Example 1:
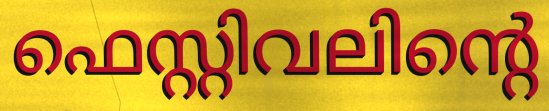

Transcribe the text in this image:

ഫെസ്റ്റിവലിന്റെ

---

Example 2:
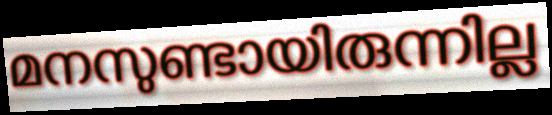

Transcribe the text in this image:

മനസുണ്ടായിരുന്നില്ല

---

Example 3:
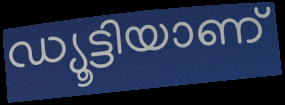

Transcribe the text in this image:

ഡ്യൂട്ടിയാണ്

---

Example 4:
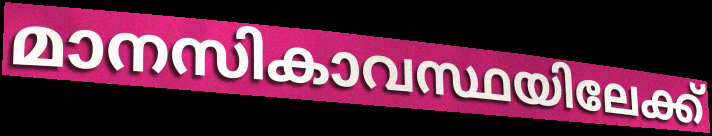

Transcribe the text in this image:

മാനസികാവസ്ഥയിലേക്ക്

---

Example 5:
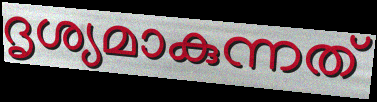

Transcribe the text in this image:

ദൃശ്യമാകുന്നത്